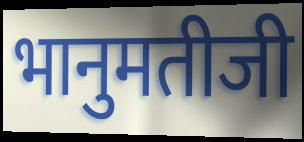
भानुमतीजी